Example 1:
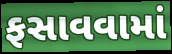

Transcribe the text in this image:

ફસાવવામાં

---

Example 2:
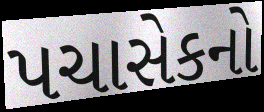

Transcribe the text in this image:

પચાસેકનો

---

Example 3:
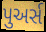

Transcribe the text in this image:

પુઅર્સ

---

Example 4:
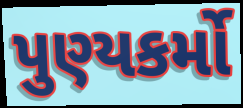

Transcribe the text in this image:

પુણ્યકર્મો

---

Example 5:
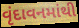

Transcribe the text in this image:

વૃંદાવનમાંથી